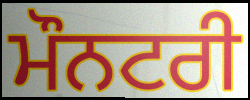
ਮੌਨਟਰੀ